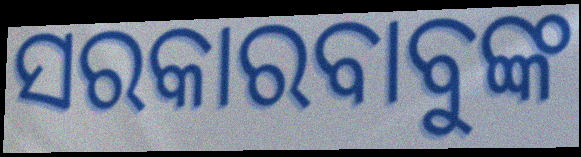
ସରକାରବାବୁଙ୍କ